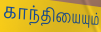
காந்தியையும்